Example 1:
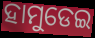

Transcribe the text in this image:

ହାମୁଡେଇ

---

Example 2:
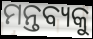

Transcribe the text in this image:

ମନ୍ତବ୍ୟକୁ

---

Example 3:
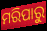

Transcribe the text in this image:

ମରିପାରୁ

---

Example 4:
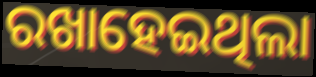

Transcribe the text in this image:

ରଖାହେଇଥିଲା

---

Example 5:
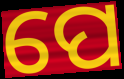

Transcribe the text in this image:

ପେ